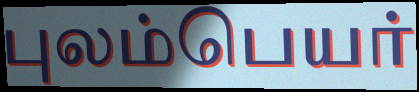
புலம்பெயர்